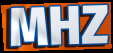
MHZ